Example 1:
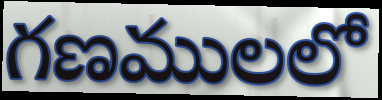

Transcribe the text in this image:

గణములలో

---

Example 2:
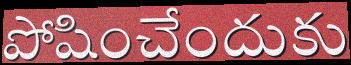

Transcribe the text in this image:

పోషించేందుకు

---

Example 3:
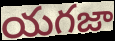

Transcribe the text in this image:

యగజా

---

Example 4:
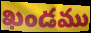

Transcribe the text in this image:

ఖండము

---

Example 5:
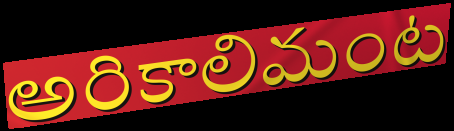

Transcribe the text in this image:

అరికాలిమంట